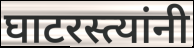
घाटरस्त्यांनी